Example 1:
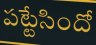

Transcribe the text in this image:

పట్టేసిందో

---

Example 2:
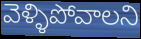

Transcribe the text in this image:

వెళ్ళిపోవాలని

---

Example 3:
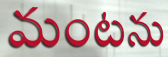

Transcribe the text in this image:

మంటను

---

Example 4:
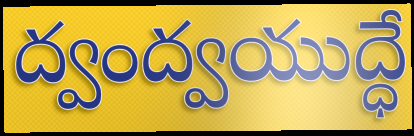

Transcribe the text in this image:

ద్వంద్వయుద్ధే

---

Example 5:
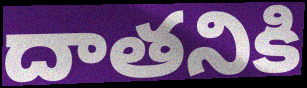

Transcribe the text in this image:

దాతనికి